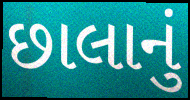
છાલાનું